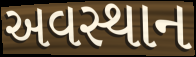
અવસ્થાન